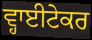
ਵ੍ਹਾਈਟੇਕਰ